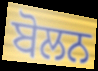
ਬੋਲਨ